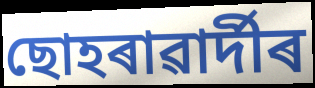
ছোহৰাৱাৰ্দীৰ